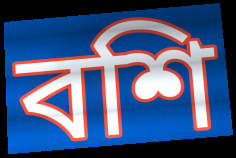
বশি